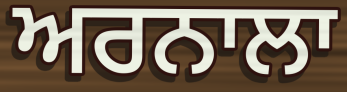
ਅਰਨਾਲਾ